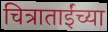
चित्राताईंच्या